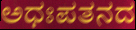
ಅಧಃಪತನದ